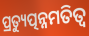
ପ୍ରତ୍ୟୁତ୍ପନ୍ନମତିତ୍ୱ